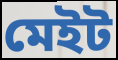
মেইট